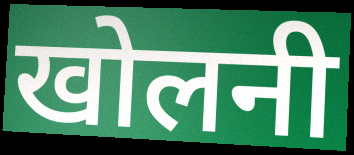
खोलनी